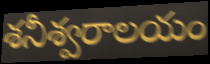
శనీశ్వరాలయం